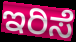
ಇರಿಸೆ